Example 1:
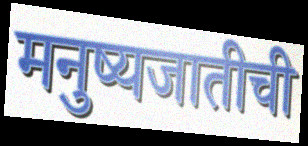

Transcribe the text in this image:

मनुष्यजातीची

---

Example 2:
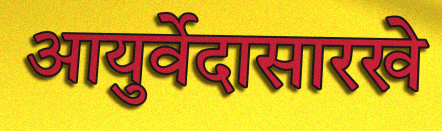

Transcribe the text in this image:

आयुर्वेदासारखे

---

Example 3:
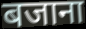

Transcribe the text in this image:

बजाना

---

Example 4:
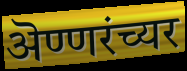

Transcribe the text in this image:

ऄण्णरंच्यर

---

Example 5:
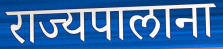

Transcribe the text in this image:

राज्यपालाना